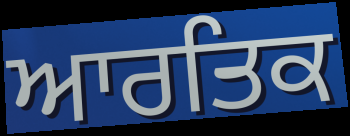
ਆਰਤਿਕ